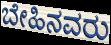
ಬೇಹಿನವರು